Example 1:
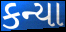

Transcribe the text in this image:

કન્યા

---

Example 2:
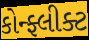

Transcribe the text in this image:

કોન્ફ્લીક્ટ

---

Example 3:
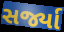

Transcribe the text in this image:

સર્જ્યા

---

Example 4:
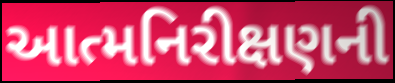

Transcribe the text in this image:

આત્મનિરીક્ષણની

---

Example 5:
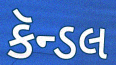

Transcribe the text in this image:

કૅન્ડલ